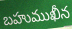
బహుముఖీన